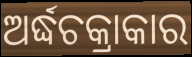
ଅର୍ଦ୍ଧଚକ୍ରାକାର